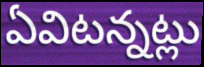
ఏవిటన్నట్లు